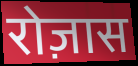
रोज़ास